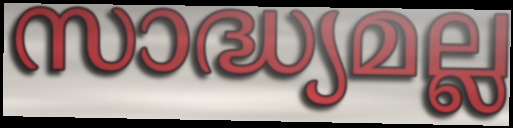
സാദ്ധ്യമല്ല